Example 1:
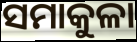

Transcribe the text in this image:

ସମାକୁଳା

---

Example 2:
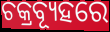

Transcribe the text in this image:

ଚକ୍ରବ୍ୟୂହରେ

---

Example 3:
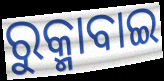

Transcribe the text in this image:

ରୁକ୍ମାବାଇ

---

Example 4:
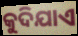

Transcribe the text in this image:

କୁଦିଯାଏ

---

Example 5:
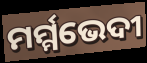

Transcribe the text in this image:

ମର୍ମ୍ମଭେଦୀ